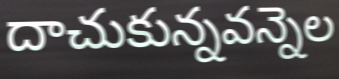
దాచుకున్నవన్నెల